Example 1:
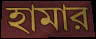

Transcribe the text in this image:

হামার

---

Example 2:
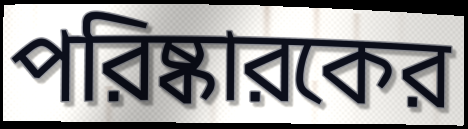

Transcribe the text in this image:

পরিষ্কারকের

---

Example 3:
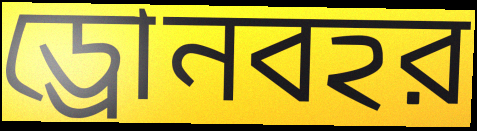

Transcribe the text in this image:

ড্রোনবহর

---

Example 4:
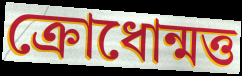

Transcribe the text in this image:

ক্রোধোন্মত্ত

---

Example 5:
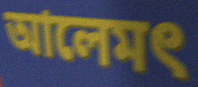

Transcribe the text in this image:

আলেমৎ